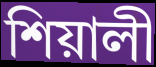
শিয়ালী